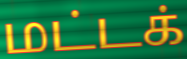
மட்டக்